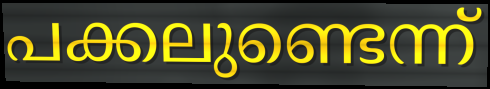
പക്കലുണ്ടെന്ന്